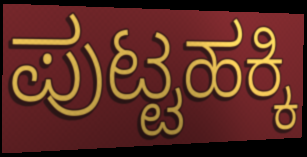
ಪುಟ್ಟಹಕ್ಕಿ